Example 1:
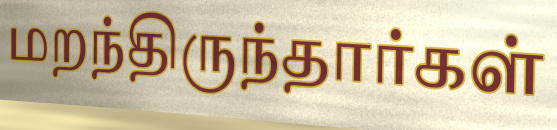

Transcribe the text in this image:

மறந்திருந்தார்கள்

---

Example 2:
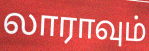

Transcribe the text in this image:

லாராவும்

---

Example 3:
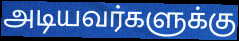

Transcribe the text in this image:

அடியவர்களுக்கு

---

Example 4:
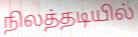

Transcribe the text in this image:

நிலத்தடியில்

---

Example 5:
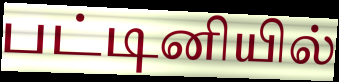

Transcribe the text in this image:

பட்டினியில்